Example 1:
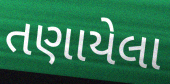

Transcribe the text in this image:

તણાયેલા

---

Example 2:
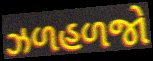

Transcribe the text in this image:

ઝળહળજો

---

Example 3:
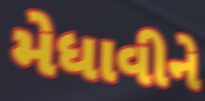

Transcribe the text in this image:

મેધાવીને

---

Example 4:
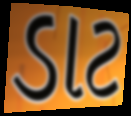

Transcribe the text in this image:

ડાટ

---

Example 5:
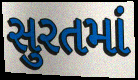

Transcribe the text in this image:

સુરતમાં